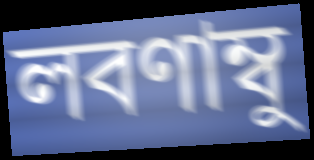
লবণাম্বু